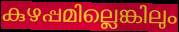
കുഴപ്പമില്ലെങ്കിലും